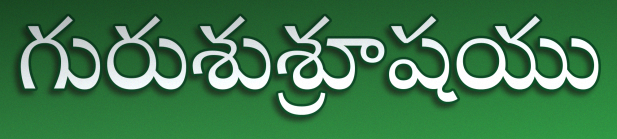
గురుశుశ్రూషయు